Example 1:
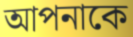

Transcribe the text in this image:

আপনাকে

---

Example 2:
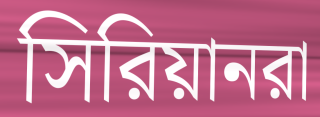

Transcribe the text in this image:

সিরিয়ানরা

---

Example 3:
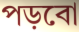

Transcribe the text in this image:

পড়বো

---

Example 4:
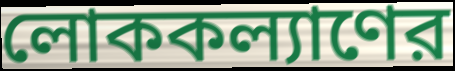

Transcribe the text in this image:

লোককল্যাণের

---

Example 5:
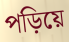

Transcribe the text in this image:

পড়িয়ে